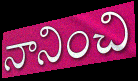
నానించి